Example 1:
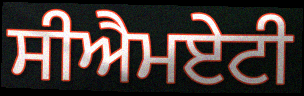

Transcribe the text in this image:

ਸੀਐਮਏਟੀ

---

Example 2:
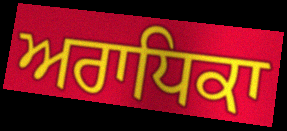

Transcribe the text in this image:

ਅਰਾਧਿਕਾ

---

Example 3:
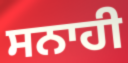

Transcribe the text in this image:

ਸਨਾਹੀ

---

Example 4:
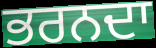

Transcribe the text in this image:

ਭਰਨਦਾ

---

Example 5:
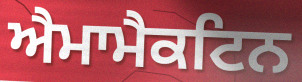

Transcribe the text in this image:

ਐਮਾਮੈਕਟਿਨ